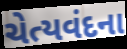
ચેત્યવંદના